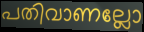
പതിവാണല്ലോ